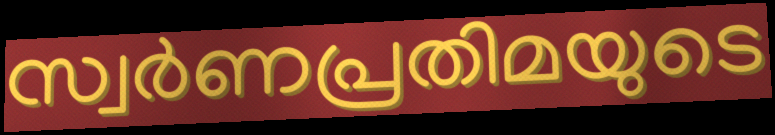
സ്വർണപ്രതിമയുടെ